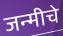
जन्मीचे